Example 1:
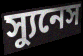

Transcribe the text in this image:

স্যুনেস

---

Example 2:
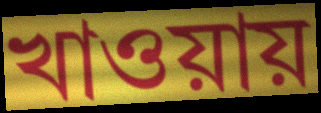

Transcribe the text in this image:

খাওয়ায়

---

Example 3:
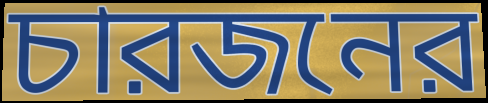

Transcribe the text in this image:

চারজনের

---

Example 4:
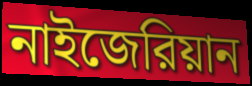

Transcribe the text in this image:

নাইজেরিয়ান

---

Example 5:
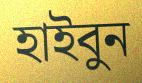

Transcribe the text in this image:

হাইবুন